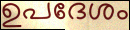
ഉപദേശം